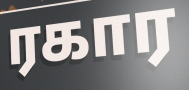
ரகார